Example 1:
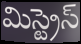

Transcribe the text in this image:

మిస్ట్రెస్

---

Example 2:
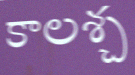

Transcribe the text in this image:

కాలశ్చ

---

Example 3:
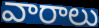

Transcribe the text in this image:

వారాలు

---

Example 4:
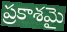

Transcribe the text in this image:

ప్రకాశమై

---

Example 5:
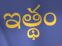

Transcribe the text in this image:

ఇత్థం